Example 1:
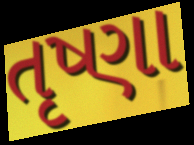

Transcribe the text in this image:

તૃષ્ણા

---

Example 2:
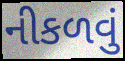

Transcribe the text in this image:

નીકળવું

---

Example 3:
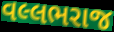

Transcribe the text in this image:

વલ્લભરાજ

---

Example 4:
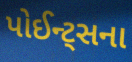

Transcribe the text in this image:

પોઈન્ટ્સના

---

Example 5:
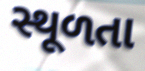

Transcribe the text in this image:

સ્થૂળતા